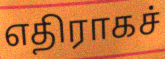
எதிராகச்